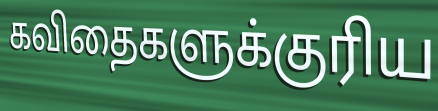
கவிதைகளுக்குரிய